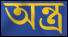
অন্ত্র